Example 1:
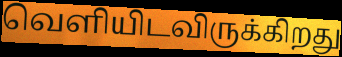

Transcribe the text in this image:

வெளியிடவிருக்கிறது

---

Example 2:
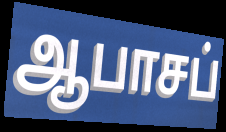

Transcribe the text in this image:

ஆபாசப்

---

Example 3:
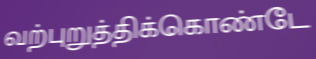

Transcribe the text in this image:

வற்புறுத்திக்கொண்டே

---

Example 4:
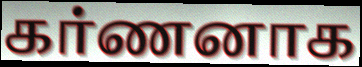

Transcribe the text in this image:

கர்ணனாக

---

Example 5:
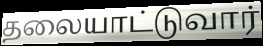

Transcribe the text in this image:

தலையாட்டுவார்